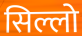
सिल्लो